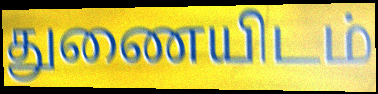
துணையிடம்